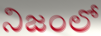
నిజంలో